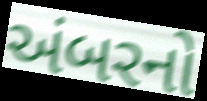
અંબરનો